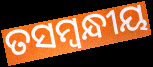
ତସମ୍ବନ୍ଧୀୟ